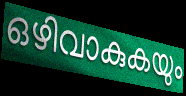
ഒഴിവാകുകയും